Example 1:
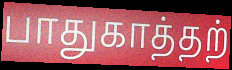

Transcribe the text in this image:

பாதுகாத்தற்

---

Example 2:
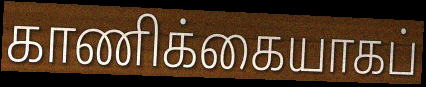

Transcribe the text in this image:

காணிக்கையாகப்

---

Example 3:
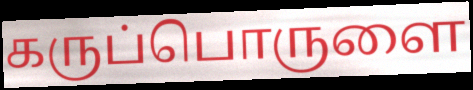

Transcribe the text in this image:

கருப்பொருளை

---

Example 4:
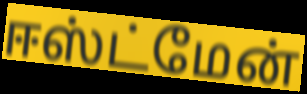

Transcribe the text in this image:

ஈஸ்ட்மேன்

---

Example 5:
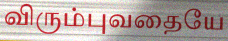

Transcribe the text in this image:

விரும்புவதையே